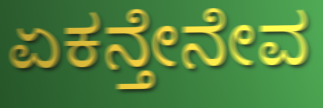
ಏಕನ್ತೇನೇವ